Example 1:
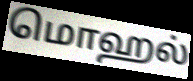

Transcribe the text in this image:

மொஹல்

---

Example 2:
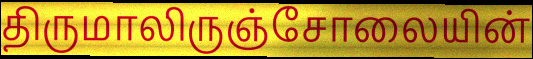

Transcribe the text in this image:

திருமாலிருஞ்சோலையின்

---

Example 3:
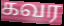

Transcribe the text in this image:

கவர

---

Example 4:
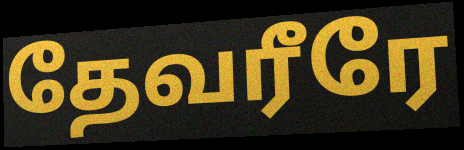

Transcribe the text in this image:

தேவரீரே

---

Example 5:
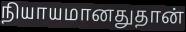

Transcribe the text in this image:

நியாயமானதுதான்